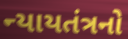
ન્યાયતંત્રનો